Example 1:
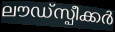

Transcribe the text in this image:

ലൗഡ്സ്പീക്കർ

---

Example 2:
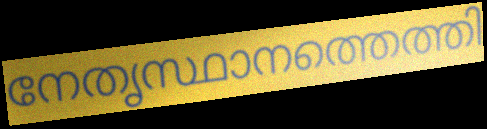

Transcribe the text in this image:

നേതൃസ്ഥാനത്തെത്തി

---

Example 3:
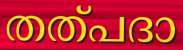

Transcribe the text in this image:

തത്പദാ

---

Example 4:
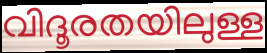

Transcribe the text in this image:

വിദൂരതയിലുള്ള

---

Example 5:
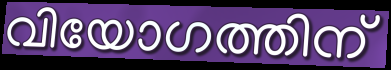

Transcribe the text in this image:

വിയോഗത്തിന്